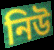
নিউ